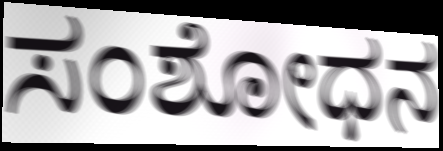
ಸಂಶೋಧನ